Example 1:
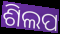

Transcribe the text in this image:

ଶିଲପ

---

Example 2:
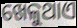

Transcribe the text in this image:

ଖେଳୁଥାଏ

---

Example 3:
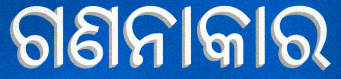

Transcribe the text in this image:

ଗଣନାକାର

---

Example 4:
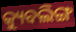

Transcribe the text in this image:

କ୍ୟୁବଲିଙ୍ଗ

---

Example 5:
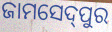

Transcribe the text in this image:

ଜାମସେଦ୍‌ପୁର